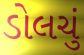
ડોલચું